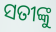
ସତୀଙ୍କୁ